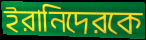
ইরানিদেরকে